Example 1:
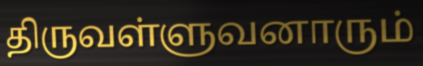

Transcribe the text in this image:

திருவள்ளுவனாரும்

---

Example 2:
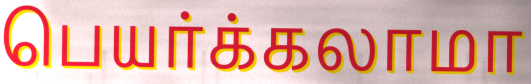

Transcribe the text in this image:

பெயர்க்கலாமா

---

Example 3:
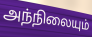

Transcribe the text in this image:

அந்நிலையும்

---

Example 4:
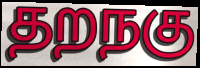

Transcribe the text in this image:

தறநகு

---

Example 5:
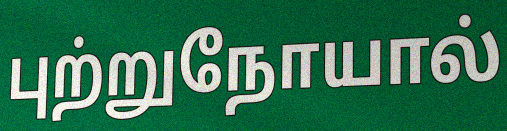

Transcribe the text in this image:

புற்றுநோயால்